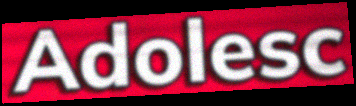
Adolesc